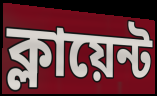
ক্লায়েন্ট